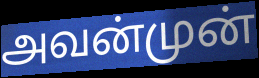
அவன்முன்